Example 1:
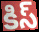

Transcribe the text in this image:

కిస్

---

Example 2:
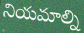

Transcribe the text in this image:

నియమాల్ని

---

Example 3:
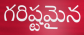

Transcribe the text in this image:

గరిష్టమైన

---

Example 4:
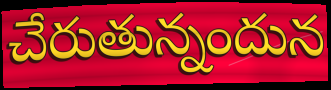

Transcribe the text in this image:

చేరుతున్నందున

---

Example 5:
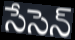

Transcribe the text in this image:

సేసెన్